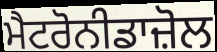
ਮੈਟਰੋਨੀਡਾਜ਼ੋਲ